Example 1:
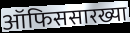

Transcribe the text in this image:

ऑफिससारख्या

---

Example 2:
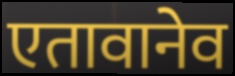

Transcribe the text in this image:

एतावानेव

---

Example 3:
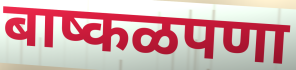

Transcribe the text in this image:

बाष्कळपणा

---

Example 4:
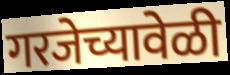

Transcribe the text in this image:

गरजेच्यावेळी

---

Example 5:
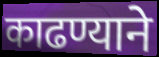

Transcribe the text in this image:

काढण्याने